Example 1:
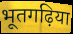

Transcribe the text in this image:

भूतगढ़िया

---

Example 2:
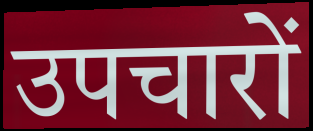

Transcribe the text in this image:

उपचारों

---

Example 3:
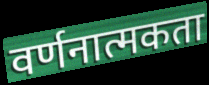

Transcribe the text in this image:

वर्णनात्मकता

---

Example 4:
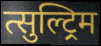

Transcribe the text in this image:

त्सुल्ट्रिम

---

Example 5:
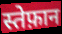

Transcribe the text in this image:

स्तेफ़ान